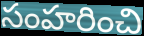
సంహరించి